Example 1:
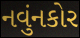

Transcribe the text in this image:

નવુંનકોર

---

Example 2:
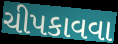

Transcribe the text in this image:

ચીપકાવવા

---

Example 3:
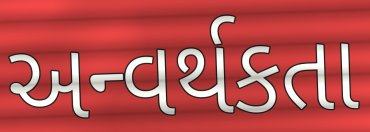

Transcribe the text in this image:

અન્વર્થકતા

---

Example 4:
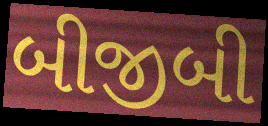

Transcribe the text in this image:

બીજીબી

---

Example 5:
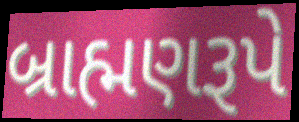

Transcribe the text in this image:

બ્રાહ્મણરૂપે